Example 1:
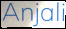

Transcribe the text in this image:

Anjali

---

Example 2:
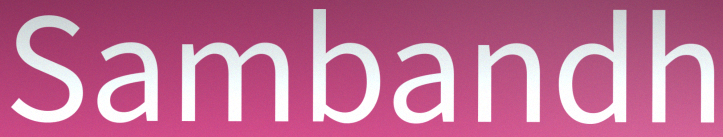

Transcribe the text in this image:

Sambandh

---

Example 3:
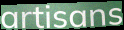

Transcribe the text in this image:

artisans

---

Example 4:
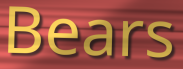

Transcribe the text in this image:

Bears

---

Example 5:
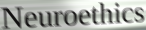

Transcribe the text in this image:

Neuroethics